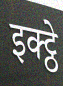
इक्ट्ठे